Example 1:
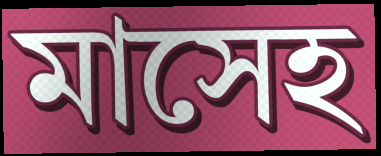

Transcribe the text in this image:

মাসেহ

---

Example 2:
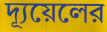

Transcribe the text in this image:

দ্যূয়েলের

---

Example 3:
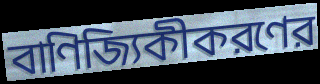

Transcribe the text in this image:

বাণিজ্যিকীকরণের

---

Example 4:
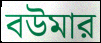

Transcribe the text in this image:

বউমার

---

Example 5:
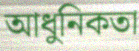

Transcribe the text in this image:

আধুনিকতা